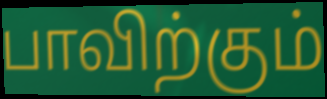
பாவிற்கும்